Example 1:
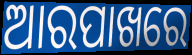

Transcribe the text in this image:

ଆରପାଖରେ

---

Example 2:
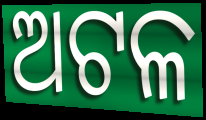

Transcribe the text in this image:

ଅଟଳ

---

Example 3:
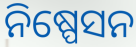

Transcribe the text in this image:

ନିଷ୍ପେସନ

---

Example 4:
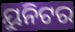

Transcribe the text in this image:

ୟୁନିଟର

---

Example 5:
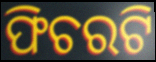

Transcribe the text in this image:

ଫିଚରଟି